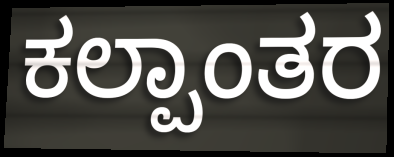
ಕಲ್ಪಾಂತರ